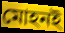
মোহনই